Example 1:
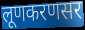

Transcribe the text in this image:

लूणकरणसर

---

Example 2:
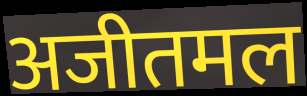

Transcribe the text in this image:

अजीतमल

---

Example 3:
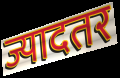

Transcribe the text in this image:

ज्यादतर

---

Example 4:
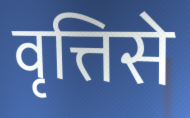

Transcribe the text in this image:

वृत्तिसे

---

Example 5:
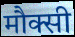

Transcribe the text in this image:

मौक्सी